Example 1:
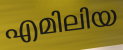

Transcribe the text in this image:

എമിലിയ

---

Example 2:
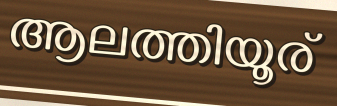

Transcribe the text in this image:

ആലത്തിയൂര്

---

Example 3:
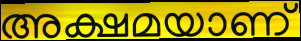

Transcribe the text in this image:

അക്ഷമയാണ്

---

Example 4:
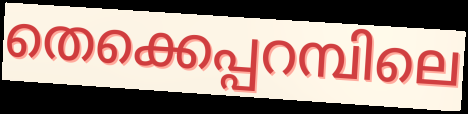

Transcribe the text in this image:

തെക്കെപ്പറമ്പിലെ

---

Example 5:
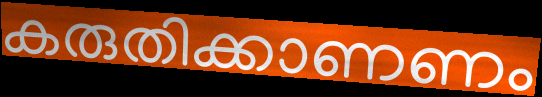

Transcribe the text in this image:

കരുതിക്കാണണം